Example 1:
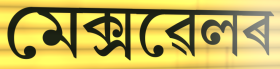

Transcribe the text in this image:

মেক্সৱেলৰ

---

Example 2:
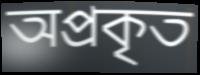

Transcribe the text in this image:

অপ্ৰকৃত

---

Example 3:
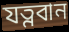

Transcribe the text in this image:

যত্নবান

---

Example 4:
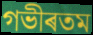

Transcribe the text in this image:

গভীৰতম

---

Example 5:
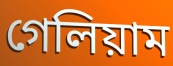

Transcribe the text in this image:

গেলিয়াম